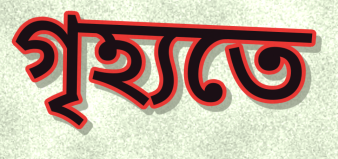
গৃহ্যতে